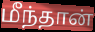
மீந்தான்